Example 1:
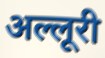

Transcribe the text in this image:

अल्लूरी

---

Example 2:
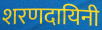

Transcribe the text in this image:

शरणदायिनी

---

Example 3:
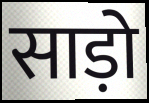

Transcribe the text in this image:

साड़ो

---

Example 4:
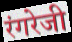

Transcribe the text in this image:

रंगरेजी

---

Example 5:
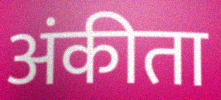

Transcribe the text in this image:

अंकीता